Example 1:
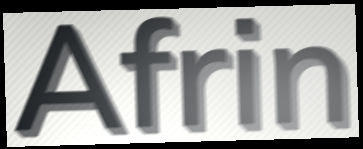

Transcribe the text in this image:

Afrin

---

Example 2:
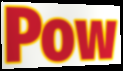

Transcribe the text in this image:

Pow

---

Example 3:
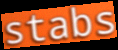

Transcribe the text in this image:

stabs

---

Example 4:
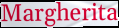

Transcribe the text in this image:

Margherita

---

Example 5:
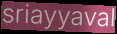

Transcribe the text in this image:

sriayyaval